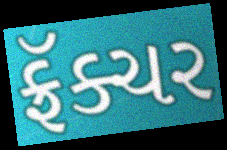
ફ્રૅક્ચર